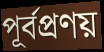
পূর্বপ্রণয়